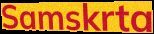
Samskrta